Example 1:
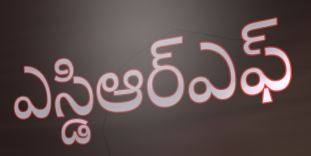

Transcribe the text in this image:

ఎస్డిఆర్ఎఫ్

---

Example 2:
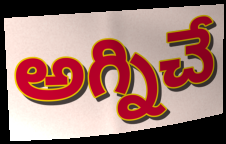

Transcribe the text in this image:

అగ్నిచే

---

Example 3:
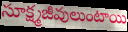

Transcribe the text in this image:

సూక్ష్మజీవులుంటాయి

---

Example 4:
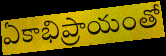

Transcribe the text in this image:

ఏకాభిప్రాయంతో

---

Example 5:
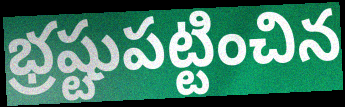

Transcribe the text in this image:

భ్రష్టుపట్టించిన